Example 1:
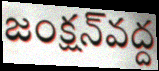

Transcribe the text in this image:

జంక్షన్‌వద్ద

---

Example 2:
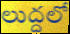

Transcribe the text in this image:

లుద్దలో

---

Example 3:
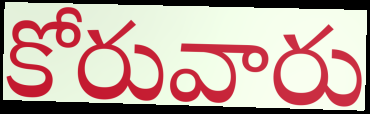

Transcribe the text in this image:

కోరువారు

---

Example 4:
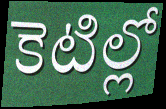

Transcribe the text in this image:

కెటిల్లో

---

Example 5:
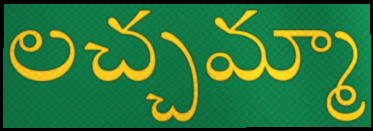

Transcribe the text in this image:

లచ్చమ్మా